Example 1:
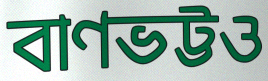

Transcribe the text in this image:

বাণভট্টও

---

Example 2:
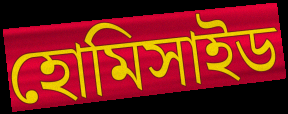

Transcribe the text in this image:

হোমিসাইড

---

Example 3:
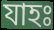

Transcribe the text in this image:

যাহঃ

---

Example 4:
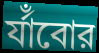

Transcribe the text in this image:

র্যাঁবোর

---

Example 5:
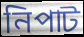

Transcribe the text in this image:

নিপাট